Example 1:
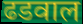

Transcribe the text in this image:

ढडवाल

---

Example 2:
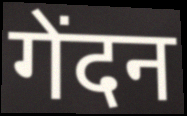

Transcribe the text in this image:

गेंदन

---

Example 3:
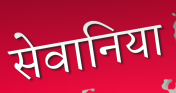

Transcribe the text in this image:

सेवानिया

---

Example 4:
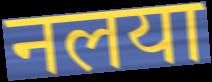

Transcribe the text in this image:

नलया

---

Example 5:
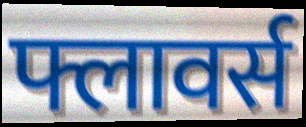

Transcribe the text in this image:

फ्लावर्स